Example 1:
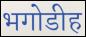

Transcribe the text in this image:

भगोडीह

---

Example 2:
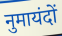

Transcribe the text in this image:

नुमायंदों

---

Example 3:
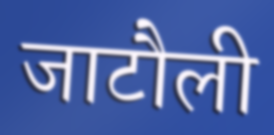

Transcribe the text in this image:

जाटौली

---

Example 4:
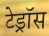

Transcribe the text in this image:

टेड्रॉस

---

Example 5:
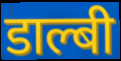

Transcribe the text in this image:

डाल्बी